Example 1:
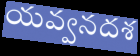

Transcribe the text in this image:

యవ్వనదశ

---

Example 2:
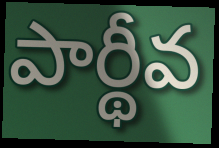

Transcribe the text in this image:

పార్థీవ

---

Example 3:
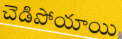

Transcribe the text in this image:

చెడిపోయాయి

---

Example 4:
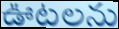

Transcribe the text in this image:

ఊటలను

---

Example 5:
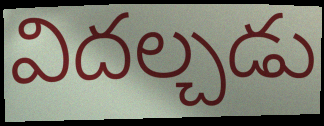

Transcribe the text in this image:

విదల్చడు